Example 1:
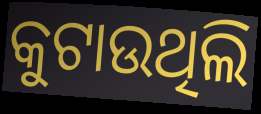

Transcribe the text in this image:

କୁଟାଉଥିଲି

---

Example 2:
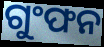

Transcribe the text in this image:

ଗୁଂଫନ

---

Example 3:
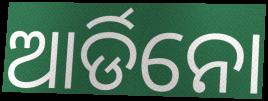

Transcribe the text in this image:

ଆର୍ଡିନୋ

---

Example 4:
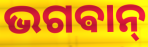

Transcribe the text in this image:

ଭଗଵାନ୍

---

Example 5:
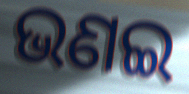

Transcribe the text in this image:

ଭଣଇ